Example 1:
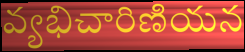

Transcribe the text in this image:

వ్యభిచారిణియన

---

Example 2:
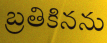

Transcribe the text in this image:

బ్రతికినను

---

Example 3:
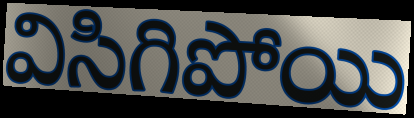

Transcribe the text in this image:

విసిగిపోయి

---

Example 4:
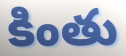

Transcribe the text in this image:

కింతు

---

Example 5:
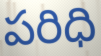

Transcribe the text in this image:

పరిధి